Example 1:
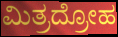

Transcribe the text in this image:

ಮಿತ್ರದ್ರೋಹ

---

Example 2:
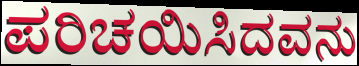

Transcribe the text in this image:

ಪರಿಚಯಿಸಿದವನು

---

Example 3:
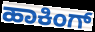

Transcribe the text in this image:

ಹಾಕಿಂಗ್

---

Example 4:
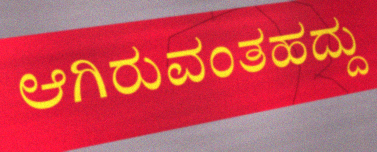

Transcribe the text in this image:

ಆಗಿರುವಂತಹದ್ದು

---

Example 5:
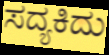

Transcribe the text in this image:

ಸದ್ಯಕಿದು